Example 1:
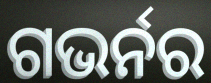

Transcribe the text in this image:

ଗଭର୍ନର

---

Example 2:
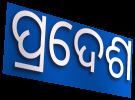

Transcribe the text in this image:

ପ୍ରଦେଶ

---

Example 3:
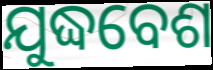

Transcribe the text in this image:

ଯୁଦ୍ଧବେଶ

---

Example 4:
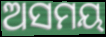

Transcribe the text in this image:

ଅସମୟ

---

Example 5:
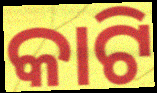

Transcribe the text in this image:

କାଟି